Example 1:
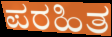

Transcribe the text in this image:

ಪರಹಿತ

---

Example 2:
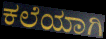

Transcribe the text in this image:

ಕಲೆಯಾಗಿ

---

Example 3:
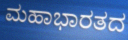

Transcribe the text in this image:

ಮಹಾಭಾರತದ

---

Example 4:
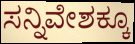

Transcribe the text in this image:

ಸನ್ನಿವೇಶಕ್ಕೂ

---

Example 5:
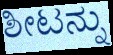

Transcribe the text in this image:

ಶೀಟನ್ನು